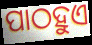
ପାଠହୁଏ